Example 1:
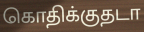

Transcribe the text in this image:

கொதிக்குதடா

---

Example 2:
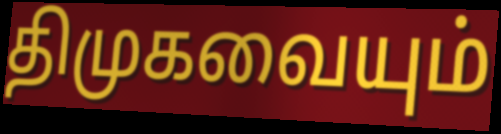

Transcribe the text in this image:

திமுகவையும்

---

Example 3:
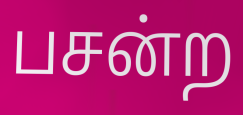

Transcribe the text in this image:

பசன்ற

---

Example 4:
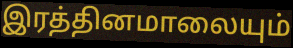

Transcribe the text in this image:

இரத்தினமாலையும்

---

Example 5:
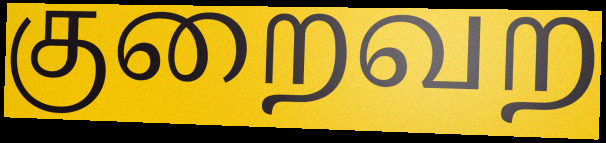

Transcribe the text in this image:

குறைவற